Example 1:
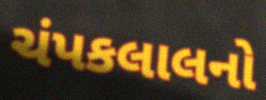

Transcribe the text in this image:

ચંપકલાલનો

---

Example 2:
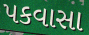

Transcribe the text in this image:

પકવાસા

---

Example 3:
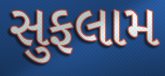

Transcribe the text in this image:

સુફલામ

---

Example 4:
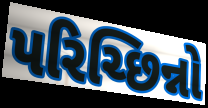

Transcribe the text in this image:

પરિચ્છિન્નો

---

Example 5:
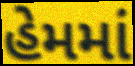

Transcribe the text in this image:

હેમમાં